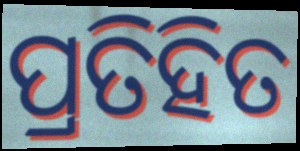
ପ୍ରତିହିତ